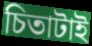
চিতাটাই